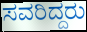
ಸವರಿದ್ದರು